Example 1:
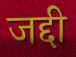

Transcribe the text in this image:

जद्दी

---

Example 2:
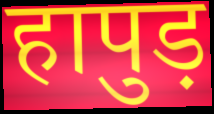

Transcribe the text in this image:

हापुड़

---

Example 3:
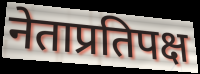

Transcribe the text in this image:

नेताप्रतिपक्ष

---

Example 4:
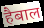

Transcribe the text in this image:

हैबाल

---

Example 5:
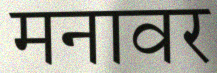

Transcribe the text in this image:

मनावर